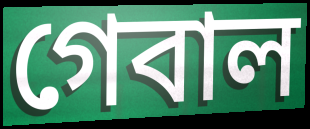
গেবাল